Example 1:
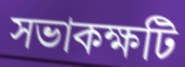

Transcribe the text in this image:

সভাকক্ষটি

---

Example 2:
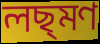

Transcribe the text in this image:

লছ্মণ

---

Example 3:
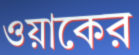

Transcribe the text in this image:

ওয়াকের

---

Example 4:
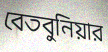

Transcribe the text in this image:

বেতবুনিয়ার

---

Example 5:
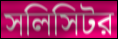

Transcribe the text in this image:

সলিসিটর